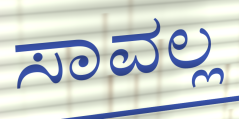
ಸಾವಲ್ಲ